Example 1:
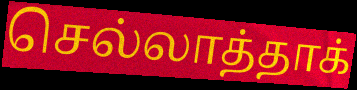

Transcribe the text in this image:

செல்லாத்தாக்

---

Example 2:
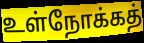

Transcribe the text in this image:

உள்நோக்கத்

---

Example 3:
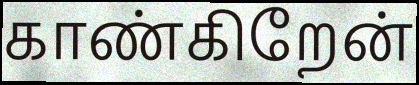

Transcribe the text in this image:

காண்கிறேன்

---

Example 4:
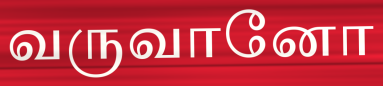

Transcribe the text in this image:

வருவானோ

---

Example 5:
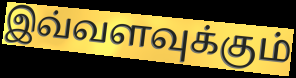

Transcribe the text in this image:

இவ்வளவுக்கும்